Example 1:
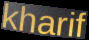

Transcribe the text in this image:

kharif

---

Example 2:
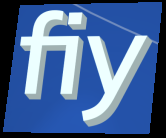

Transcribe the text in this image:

fiy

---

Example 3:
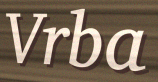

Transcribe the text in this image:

Vrba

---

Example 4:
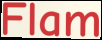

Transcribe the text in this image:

Flam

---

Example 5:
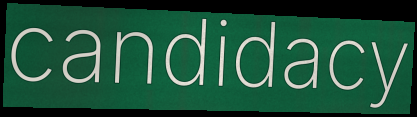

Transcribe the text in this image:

candidacy